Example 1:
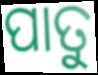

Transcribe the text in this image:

ପାତୁ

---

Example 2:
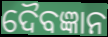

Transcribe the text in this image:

ଦୈବଜ୍ଞାନ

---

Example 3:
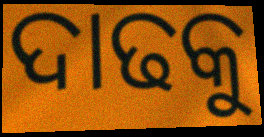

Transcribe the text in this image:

ଦାଢକୁ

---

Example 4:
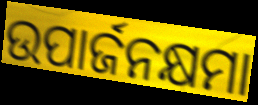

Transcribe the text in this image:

ଉପାର୍ଜନକ୍ଷମା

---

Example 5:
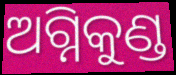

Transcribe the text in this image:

ଅଗ୍ନିକୁଣ୍ଡ